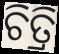
ଚିତ୍ରି